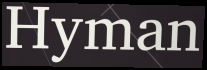
Hyman